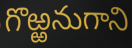
గొఱ్ఱనుగాని